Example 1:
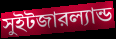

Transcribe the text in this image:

সুইটজারল্যান্ড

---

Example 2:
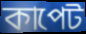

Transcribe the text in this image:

কাপেট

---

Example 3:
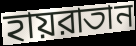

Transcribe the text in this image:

হায়রাতান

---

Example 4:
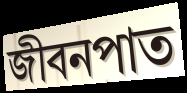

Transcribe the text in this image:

জীবনপাত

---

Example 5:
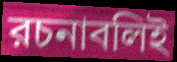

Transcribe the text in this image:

রচনাবলিই